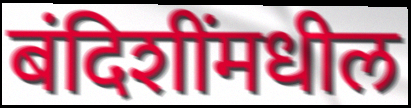
बंदिशींमधील